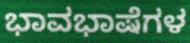
ಭಾವಭಾಷೆಗಳ